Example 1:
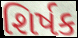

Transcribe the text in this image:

શિર્ષક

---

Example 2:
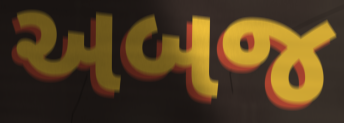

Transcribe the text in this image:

અબજ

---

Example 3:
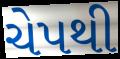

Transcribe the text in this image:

ચેપથી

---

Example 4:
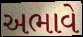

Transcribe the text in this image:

અભાવે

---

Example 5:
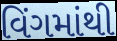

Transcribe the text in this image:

વિંગમાંથી